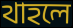
থাহলে